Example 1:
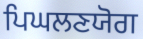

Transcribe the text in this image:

ਪਿਘਲਣਯੋਗ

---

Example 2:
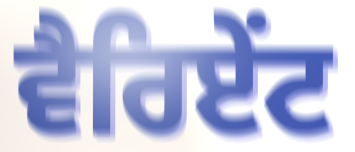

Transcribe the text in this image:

ਵੈਰਿਏਂਟ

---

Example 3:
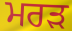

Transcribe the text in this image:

ਮਰੜ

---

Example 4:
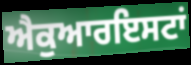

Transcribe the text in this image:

ਐਕੁਆਰਇਸਟਾਂ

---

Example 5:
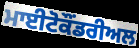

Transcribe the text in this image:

ਮਾਈਟੋਕੌਂਡਰੀਅਲ